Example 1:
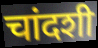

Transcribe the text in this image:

चांदशी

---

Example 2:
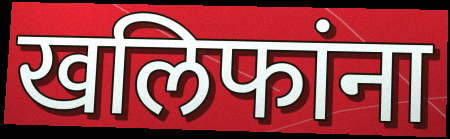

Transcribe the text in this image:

खलिफांना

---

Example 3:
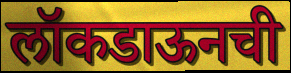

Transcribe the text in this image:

लॉकडाऊनची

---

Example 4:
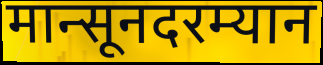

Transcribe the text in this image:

मान्सूनदरम्यान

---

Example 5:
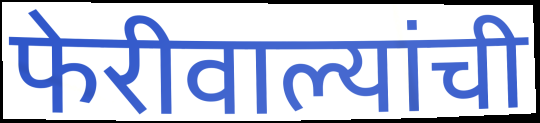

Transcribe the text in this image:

फेरीवाल्यांची